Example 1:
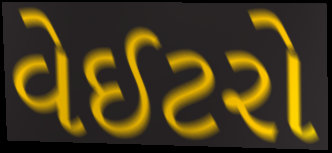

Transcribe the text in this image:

વેઈટરો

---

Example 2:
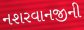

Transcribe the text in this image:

નશરવાનજીની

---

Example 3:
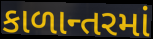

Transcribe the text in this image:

કાળાન્તરમાં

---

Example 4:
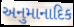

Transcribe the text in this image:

અનુમાનાદિક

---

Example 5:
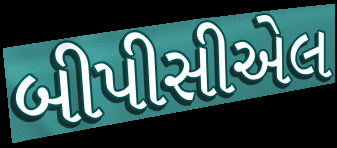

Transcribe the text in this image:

બીપીસીએલ